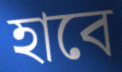
হাবে